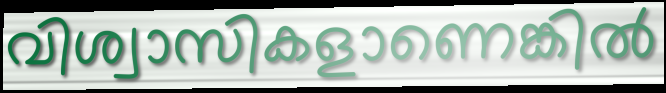
വിശ്വാസികളാണെങ്കിൽ